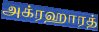
அக்ரஹாரத்